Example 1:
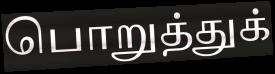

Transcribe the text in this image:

பொறுத்துக்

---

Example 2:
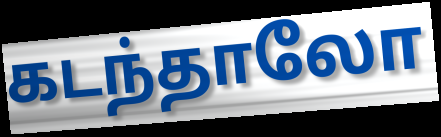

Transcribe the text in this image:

கடந்தாலோ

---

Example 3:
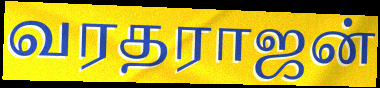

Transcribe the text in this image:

வரதராஜன்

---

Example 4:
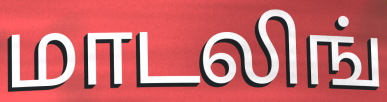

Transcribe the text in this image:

மாடலிங்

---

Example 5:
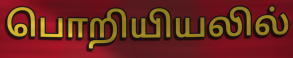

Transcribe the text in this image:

பொறியியலில்